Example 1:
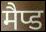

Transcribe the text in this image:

मैप्ड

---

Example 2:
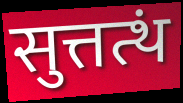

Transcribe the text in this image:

सुत्तत्थं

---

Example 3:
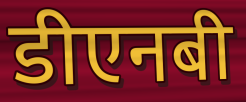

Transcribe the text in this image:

डीएनबी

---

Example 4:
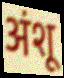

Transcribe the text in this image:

अंशू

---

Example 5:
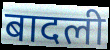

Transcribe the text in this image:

बादली